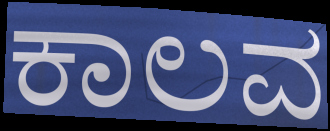
ಕಾಲವ